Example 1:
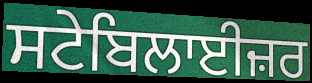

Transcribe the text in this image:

ਸਟੇਬਿਲਾਈਜ਼ਰ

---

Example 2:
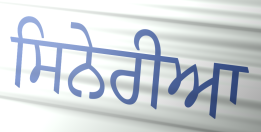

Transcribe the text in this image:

ਸਿਨੇਰੀਆ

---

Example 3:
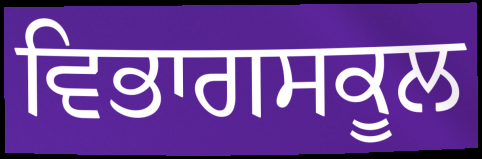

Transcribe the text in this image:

ਵਿਭਾਗਸਕੂਲ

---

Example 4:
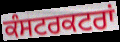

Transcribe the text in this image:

ਕੰਸਟਰਕਟਰਾਂ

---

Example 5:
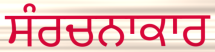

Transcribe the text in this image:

ਸੰਰਚਨਾਕਾਰ